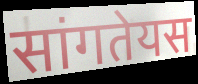
सांगतेयस